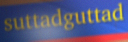
suttadguttad